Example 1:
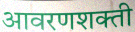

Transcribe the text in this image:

आवरणशक्ती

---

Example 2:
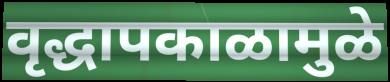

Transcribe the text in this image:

वृद्धापकाळामुळे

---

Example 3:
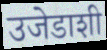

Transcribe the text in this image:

उजेडाशी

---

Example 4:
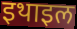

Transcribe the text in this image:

इथाइल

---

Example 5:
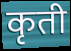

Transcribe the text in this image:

कृती